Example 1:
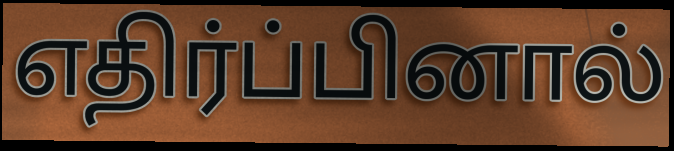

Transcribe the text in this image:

எதிர்ப்பினால்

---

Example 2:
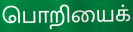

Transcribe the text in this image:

பொறியைக்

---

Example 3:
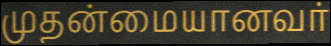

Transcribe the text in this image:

முதன்மையானவர்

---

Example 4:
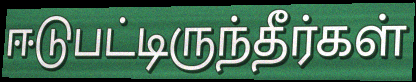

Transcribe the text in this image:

ஈடுபட்டிருந்தீர்கள்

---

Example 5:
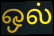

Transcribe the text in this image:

ஒல்